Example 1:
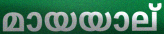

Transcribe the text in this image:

മായയാല്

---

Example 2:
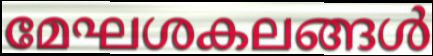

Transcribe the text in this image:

മേഘശകലങ്ങൾ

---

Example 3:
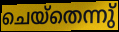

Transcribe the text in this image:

ചെയ്തെന്നു്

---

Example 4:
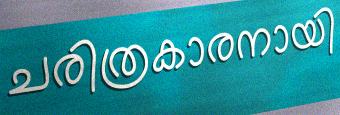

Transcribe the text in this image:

ചരിത്രകാരനായി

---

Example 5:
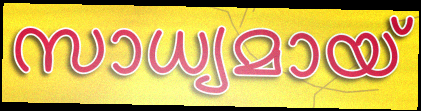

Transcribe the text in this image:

സാധ്യമായ്